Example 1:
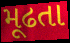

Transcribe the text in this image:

મૂઢતા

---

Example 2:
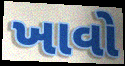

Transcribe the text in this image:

ખાવો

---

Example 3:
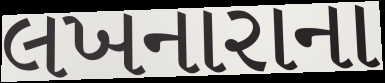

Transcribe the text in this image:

લખનારાના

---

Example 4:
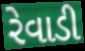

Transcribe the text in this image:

રેવાડી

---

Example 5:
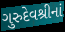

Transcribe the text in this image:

ગુરુદેવશ્રીનાં